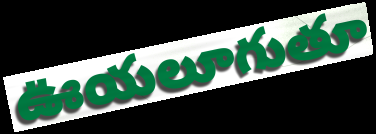
ఊయలూగుతూ